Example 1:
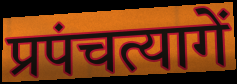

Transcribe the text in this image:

प्रपंचत्यागें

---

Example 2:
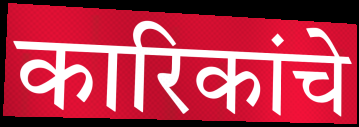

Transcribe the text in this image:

कारिकांचे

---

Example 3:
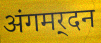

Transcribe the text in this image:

अंगमर्दन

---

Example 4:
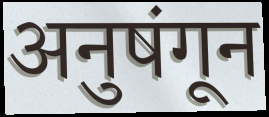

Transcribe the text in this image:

अनुषंगून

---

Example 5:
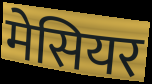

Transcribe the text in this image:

मेसियर